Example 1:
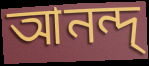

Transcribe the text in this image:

আনন্দ্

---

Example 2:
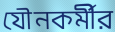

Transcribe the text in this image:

যৌনকর্মীর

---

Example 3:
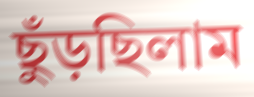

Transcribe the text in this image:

ছুঁড়ছিলাম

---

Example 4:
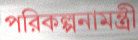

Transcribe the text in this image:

পরিকল্পনামন্ত্রী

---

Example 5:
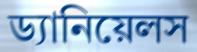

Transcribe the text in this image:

ড্যানিয়েলস